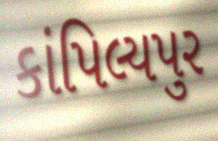
કાંપિલ્યપુર